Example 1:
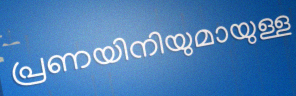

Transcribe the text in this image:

പ്രണയിനിയുമായുള്ള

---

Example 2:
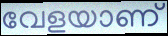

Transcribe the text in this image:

വേളയാണ്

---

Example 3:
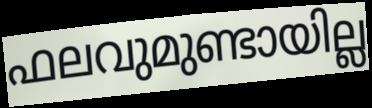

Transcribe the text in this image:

ഫലവുമുണ്ടായില്ല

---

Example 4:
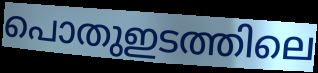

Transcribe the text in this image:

പൊതുഇടത്തിലെ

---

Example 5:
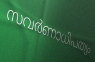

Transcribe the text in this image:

സവർണാധിപത്യം